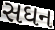
સઘન